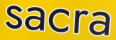
sacra